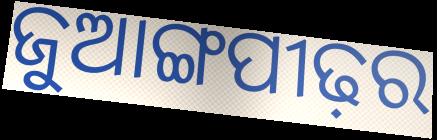
ଜୁଆଙ୍ଗପୀଢ଼ର